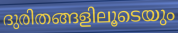
ദുരിതങ്ങളിലൂടെയും